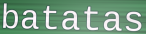
batatas